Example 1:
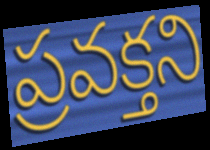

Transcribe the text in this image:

ప్రవక్తని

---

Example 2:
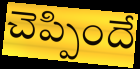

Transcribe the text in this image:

చెప్పిందే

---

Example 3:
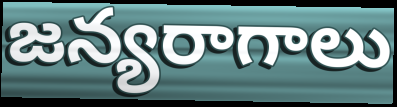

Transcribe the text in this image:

జన్యరాగాలు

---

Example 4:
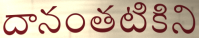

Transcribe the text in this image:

దానంతటికిని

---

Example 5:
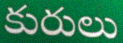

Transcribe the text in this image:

కురులు